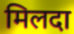
मिलदा